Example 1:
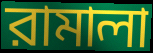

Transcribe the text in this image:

রামালা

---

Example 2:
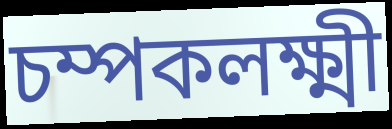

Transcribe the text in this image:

চম্পকলক্ষ্মী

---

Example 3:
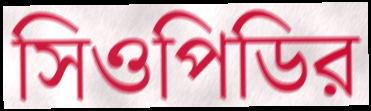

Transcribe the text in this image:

সিওপিডির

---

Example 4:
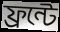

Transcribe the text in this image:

ফ্রন্টে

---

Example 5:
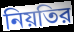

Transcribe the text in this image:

নিয়তির